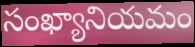
సంఖ్యానియమం